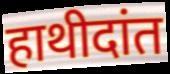
हाथीदांत